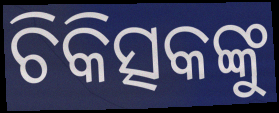
ଚିକିତ୍ସକଙ୍କୁ